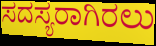
ಸದಸ್ಯರಾಗಿರಲು